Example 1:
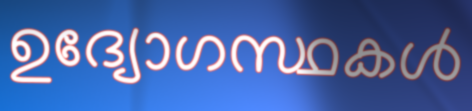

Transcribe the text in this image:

ഉദ്യോഗസ്ഥകൾ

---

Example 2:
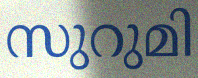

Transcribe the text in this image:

സുറുമി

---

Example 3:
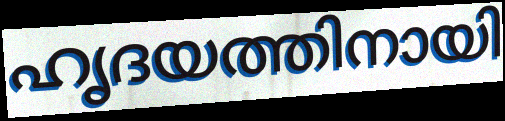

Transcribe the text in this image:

ഹൃദയത്തിനായി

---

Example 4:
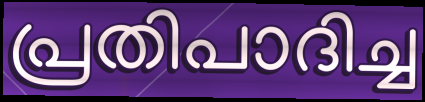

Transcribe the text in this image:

പ്രതിപാദിച്ച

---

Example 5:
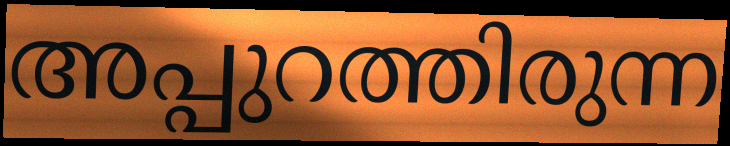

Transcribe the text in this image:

അപ്പുറത്തിരുന്ന